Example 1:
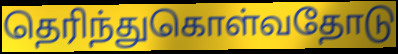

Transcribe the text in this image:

தெரிந்துகொள்வதோடு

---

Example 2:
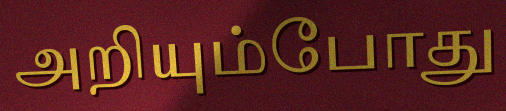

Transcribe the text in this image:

அறியும்போது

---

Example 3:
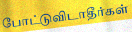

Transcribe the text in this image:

போட்டுவிடாதீர்கள்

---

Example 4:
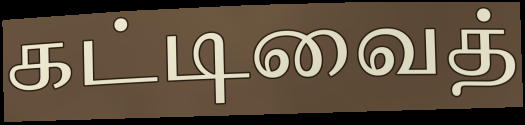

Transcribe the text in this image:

கட்டிவைத்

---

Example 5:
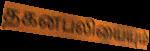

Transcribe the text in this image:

தகனபலியையும்